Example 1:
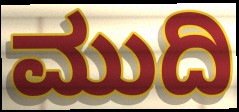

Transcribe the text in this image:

ಮುದಿ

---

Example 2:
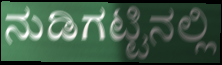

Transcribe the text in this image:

ನುಡಿಗಟ್ಟಿನಲ್ಲಿ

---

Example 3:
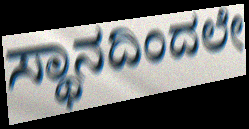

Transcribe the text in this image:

ಸ್ಥಾನದಿಂದಲೇ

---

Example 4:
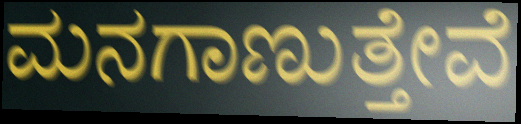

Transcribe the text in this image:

ಮನಗಾಣುತ್ತೇವೆ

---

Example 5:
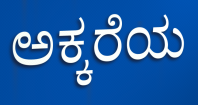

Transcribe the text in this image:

ಅಕ್ಕರೆಯ